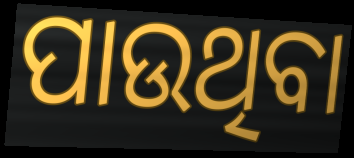
ପାଉଥିବା